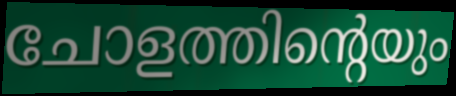
ചോളത്തിന്റെയും